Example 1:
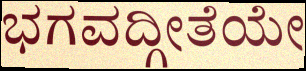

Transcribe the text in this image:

ಭಗವದ್ಗೀತೆಯೇ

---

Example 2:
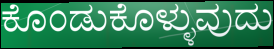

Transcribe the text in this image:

ಕೊಂಡುಕೊಳ್ಳುವುದು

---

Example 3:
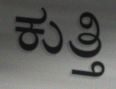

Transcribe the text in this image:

ಕುತ್ತಿ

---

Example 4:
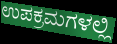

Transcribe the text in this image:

ಉಪಕ್ರಮಗಳಲ್ಲಿ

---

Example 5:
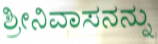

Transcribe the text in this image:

ಶ್ರೀನಿವಾಸನನ್ನು